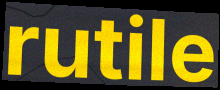
rutile